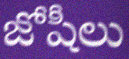
జోషీలు